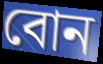
বোন